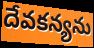
దేవకన్యను